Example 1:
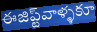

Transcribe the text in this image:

ఈజిప్ట్‌వాళ్ళకూ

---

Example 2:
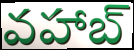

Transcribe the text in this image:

వహాబ్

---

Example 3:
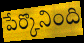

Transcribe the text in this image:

పేర్కొనింది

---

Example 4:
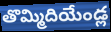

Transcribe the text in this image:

తొమ్మిదియేండ్ల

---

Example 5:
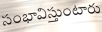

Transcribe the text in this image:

సంభావిస్తుంటారు